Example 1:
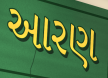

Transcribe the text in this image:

આરણ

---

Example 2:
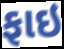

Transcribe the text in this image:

ફાઇ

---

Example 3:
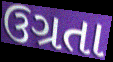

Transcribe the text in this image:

ઉગ્રતા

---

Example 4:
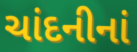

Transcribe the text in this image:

ચાંદનીનાં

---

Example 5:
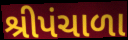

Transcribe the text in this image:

શ્રીપંચાળા